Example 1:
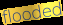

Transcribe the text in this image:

flooded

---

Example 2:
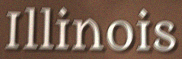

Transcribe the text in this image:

Illinois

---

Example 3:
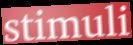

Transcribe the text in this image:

stimuli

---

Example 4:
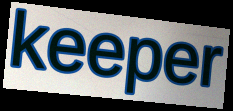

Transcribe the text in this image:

keeper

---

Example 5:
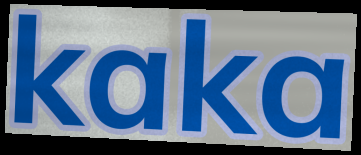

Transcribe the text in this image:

kaka